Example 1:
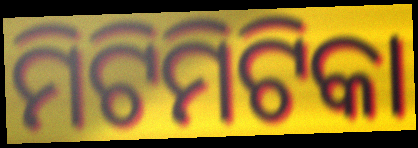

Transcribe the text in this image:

ମିଟିମିଟିକା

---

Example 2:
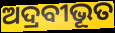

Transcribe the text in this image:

ଅଦ୍ରବୀଭୂତ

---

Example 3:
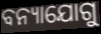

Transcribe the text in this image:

ବନ୍ୟାଯୋଗୁ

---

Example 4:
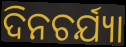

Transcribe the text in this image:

ଦିନଚର୍ଯ୍ଯା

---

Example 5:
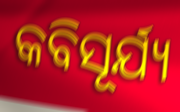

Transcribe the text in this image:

କବିସୂର୍ଯ୍ଯ